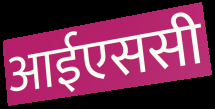
आईएससी